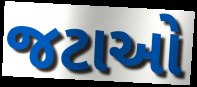
જટાઓ